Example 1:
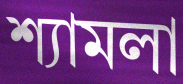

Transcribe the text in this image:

শ্যামলা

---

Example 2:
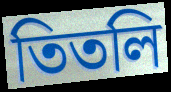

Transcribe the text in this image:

তিতলি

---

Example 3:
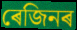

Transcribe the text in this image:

ৰেজিনৰ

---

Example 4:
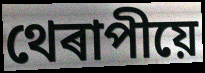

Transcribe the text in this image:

থেৰাপীয়ে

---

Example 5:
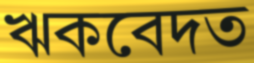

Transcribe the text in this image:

ঋকবেদত